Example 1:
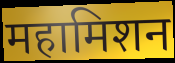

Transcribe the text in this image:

महामिशन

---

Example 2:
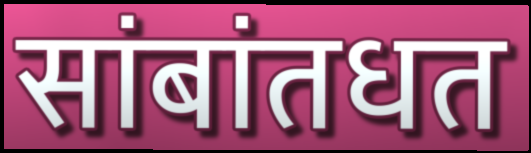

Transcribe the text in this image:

सांबांतधत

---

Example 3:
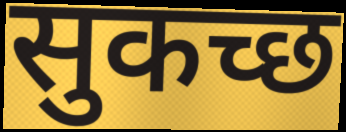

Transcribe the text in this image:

सुकच्छ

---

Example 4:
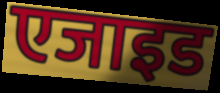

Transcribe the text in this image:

एजाइड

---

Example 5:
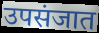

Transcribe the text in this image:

उपसंजात